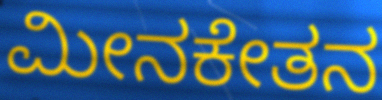
ಮೀನಕೇತನ